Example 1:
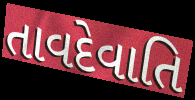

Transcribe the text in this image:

તાવદેવાતિ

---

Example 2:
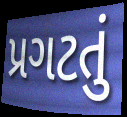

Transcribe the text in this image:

પ્રગટતું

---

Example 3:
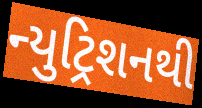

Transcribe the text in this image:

ન્યુટ્રિશનથી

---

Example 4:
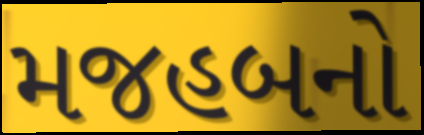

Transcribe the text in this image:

મજહબનો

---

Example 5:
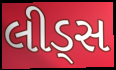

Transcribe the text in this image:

લીડ્સ